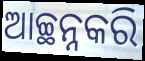
ଆଚ୍ଛନ୍ନକରି